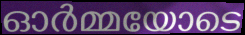
ഓർമ്മയോടെ